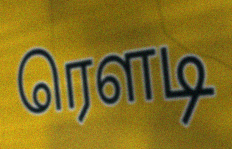
ரெளடி